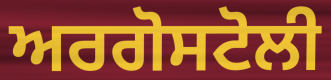
ਅਰਗੋਸਟੋਲੀ